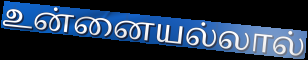
உன்னையல்லால்